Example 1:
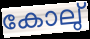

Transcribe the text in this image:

കോലു്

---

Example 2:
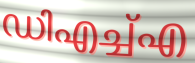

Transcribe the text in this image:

ഡിഎച്ച്എ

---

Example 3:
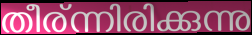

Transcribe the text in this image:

തീര്ന്നിരിക്കുന്നു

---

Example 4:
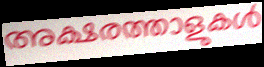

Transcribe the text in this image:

അക്ഷരത്താളുകൾ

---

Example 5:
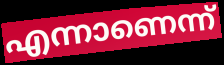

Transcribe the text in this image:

എന്നാണെന്ന്